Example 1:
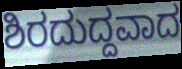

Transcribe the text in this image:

ಶಿರದುದ್ದವಾದ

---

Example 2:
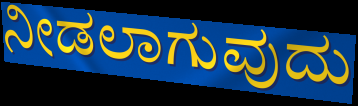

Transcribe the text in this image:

ನೀಡಲಾಗುವುದು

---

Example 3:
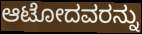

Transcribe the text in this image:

ಆಟೋದವರನ್ನು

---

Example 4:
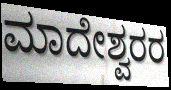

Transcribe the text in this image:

ಮಾದೇಶ್ವರರ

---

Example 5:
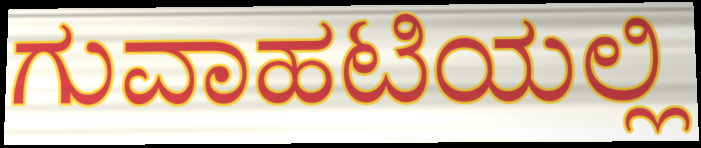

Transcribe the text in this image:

ಗುವಾಹಟಿಯಲ್ಲಿ